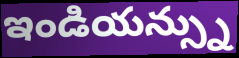
ఇండియన్స్ను